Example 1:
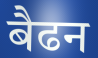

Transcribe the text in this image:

बैढन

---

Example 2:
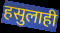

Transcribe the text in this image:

हसुलाही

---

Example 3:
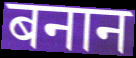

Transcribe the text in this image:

बनान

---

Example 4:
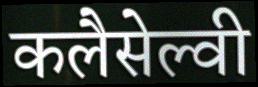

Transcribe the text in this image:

कलैसेल्वी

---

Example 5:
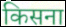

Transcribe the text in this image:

किसना